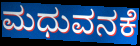
ಮಧುವನಕೆ